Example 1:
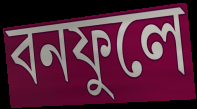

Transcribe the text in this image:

বনফুলে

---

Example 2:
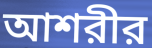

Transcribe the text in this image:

আশরীর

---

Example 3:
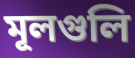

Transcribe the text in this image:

মূলগুলি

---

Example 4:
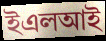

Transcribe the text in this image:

ইএলআই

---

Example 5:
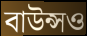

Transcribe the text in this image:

বাউন্সও